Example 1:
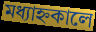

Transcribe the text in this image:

মধ্যাহ্নকালে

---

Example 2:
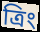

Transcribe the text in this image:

ত্রিং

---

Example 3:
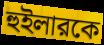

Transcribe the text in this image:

হুইলারকে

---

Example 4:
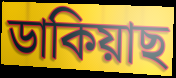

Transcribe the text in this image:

ডাকিয়াছ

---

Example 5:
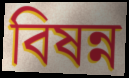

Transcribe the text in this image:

বিষন্ন